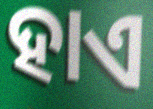
ହାଏ